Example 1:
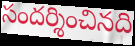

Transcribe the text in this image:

సందర్శించినది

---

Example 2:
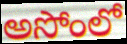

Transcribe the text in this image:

అసోంలో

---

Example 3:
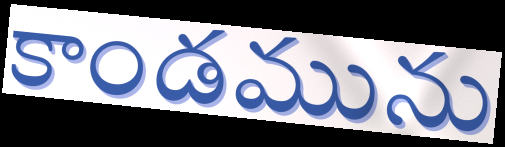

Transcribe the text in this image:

కాండమును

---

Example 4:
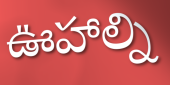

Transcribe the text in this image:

ఊహాల్ని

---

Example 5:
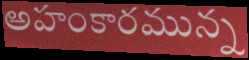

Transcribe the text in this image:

అహంకారమున్న